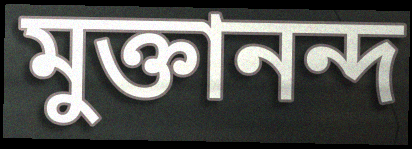
মুক্তানন্দ